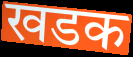
खडक